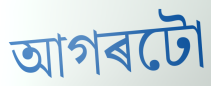
আগৰটো